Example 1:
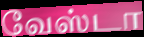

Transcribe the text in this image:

வேஸ்டா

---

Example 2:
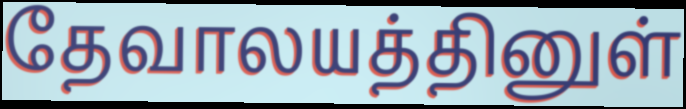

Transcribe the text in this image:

தேவாலயத்தினுள்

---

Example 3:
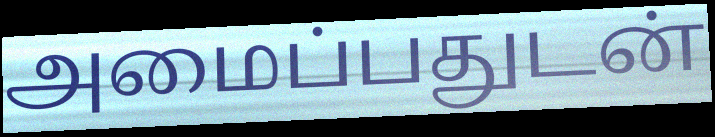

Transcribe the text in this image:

அமைப்பதுடன்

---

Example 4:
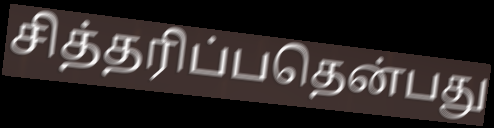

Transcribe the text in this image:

சித்தரிப்பதென்பது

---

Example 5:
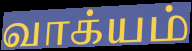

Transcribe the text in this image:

வாக்யம்